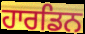
ਹਾਰਡਿਨ